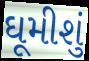
ઘૂમીશું